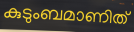
കുടുംബമാണിത്